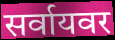
सर्वायवर